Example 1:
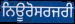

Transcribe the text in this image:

ਨਿਊਰੋਸਰਜਰੀ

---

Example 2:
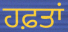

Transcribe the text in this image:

ਹਫ਼ਤਾਂ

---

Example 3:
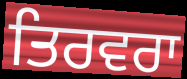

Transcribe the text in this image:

ਤਿਰਵਰਾ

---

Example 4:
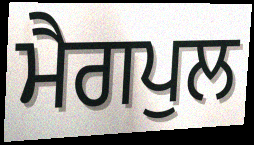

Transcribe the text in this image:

ਮੈਗਪੁਲ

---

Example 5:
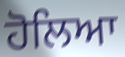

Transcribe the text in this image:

ਹੋਲਿਆ